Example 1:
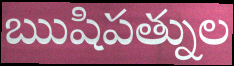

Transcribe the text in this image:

ఋషిపత్నుల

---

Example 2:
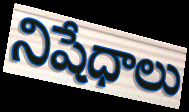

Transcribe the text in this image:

నిషేధాలు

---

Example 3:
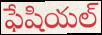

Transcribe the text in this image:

ఫేషియల్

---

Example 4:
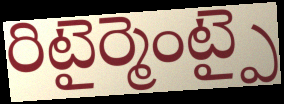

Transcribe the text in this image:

రిటైర్మెంట్పై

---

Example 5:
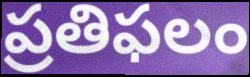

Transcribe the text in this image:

ప్రతిఫలం